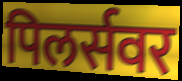
पिलर्सवर